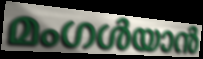
മംഗൾയാൻ